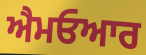
ਐਮਓਆਰ